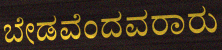
ಬೇಡವೆಂದವರಾರು